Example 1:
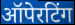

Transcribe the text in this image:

ऑपेरटिंग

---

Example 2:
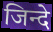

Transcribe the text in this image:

जिन्दे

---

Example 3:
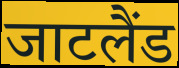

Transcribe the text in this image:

जाटलैंड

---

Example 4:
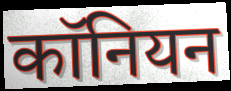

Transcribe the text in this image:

कॉनियन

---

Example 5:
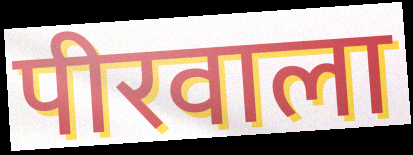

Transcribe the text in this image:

पीरवाला